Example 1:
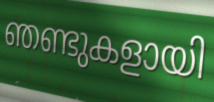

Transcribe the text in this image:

ഞണ്ടുകളായി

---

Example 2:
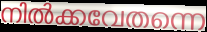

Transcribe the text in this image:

നിൽക്കവേതന്നെ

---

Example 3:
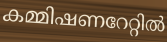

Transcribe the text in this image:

കമ്മിഷണറേറ്റിൽ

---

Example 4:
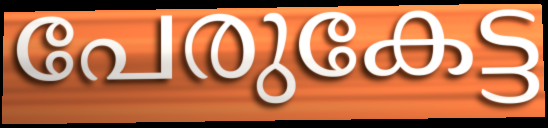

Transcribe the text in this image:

പേരുകേട്ട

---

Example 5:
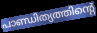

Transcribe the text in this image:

പാണ്ഡിത്യത്തിന്റെ